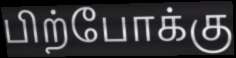
பிற்போக்கு